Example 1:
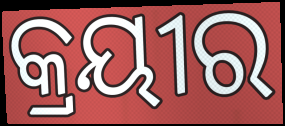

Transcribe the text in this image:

କ୍ରୟୀର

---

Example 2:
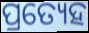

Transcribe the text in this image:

ପ୍ରତ୍ୟେହ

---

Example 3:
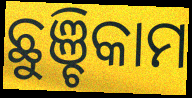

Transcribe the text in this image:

ଛୁଞ୍ଚିକାମ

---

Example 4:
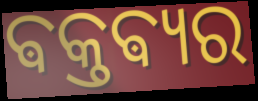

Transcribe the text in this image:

ଵକ୍ତଵ୍ୟର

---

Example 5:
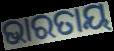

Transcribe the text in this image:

ଭାରତାୟ